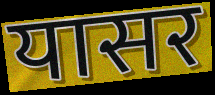
यासर